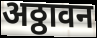
अठ्ठावन